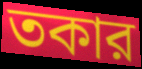
তকার